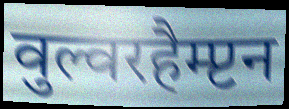
वुल्वरहैम्प्टन